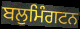
ਬਲੁਮਿੰਗਟਨ